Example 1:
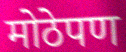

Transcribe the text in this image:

मोठेपण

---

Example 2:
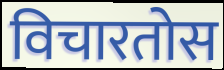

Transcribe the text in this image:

विचारतोस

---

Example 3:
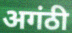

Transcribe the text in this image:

अगंठी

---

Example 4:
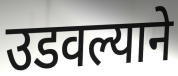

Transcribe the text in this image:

उडवल्याने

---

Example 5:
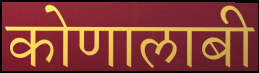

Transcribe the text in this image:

कोणालाबी